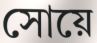
সোয়ে